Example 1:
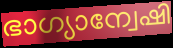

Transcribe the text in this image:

ഭാഗ്യാന്വേഷി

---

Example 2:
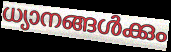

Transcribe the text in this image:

ധ്യാനങ്ങൾക്കും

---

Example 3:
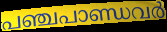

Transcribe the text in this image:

പഞ്ചപാണ്ഡവർ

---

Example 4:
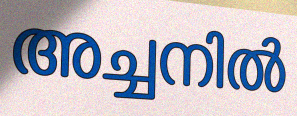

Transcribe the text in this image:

അച്ചനിൽ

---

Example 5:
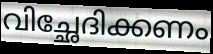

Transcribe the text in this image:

വിച്ഛേദിക്കണം